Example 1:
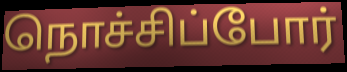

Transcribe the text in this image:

நொச்சிப்போர்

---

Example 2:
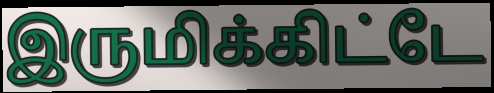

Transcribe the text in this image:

இருமிக்கிட்டே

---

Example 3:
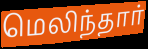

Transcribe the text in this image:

மெலிந்தார்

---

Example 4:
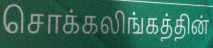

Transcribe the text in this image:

சொக்கலிங்கத்தின்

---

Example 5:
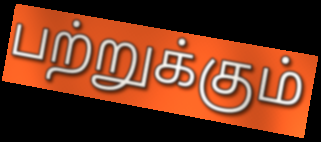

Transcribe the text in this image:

பற்றுக்கும்